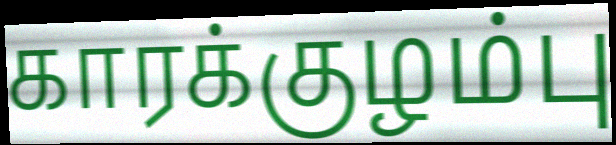
காரக்குழம்பு